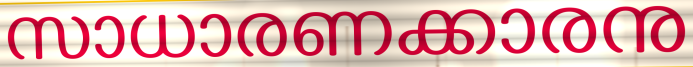
സാധാരണക്കാരനു